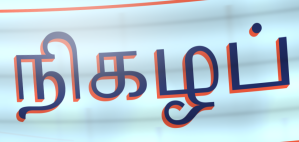
நிகழப்